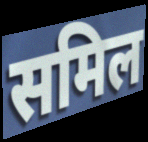
समिल